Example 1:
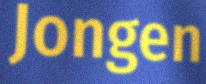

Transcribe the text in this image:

Jongen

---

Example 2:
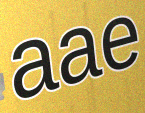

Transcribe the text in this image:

aae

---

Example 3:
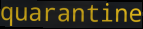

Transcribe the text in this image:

quarantine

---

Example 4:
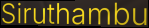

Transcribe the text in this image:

Siruthambu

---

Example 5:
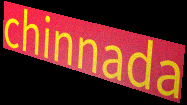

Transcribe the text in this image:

chinnada